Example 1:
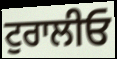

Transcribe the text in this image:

ਟੁਰਾਲੀਓ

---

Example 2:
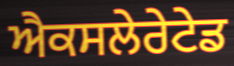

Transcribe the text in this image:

ਐਕਸਲੇਰੇਟੇਡ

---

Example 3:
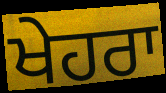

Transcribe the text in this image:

ਖੇਹਰਾ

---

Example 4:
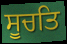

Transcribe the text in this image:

ਸੂਚਤਿ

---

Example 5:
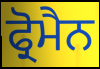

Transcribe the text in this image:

ਫ੍ਰੋਮੈਨ